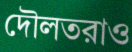
দৌলতরাও